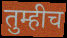
तुम्हीच